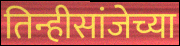
तिन्हीसांजेच्या